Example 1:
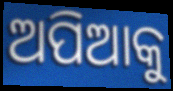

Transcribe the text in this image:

ଅପିଆକୁ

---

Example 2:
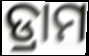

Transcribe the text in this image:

ଡ୍ରାମ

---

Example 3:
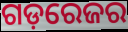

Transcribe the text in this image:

ଗଡ଼ରେଜର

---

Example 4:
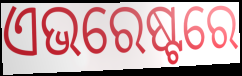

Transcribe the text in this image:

ଏଭରେଷ୍ଟରେ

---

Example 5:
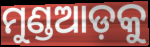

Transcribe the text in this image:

ମୁଣ୍ଡଆଡ଼କୁ